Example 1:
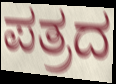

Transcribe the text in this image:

ಪತ್ರದ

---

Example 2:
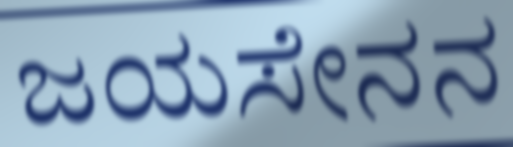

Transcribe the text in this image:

ಜಯಸೇನನ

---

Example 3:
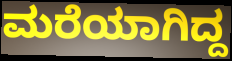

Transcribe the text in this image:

ಮರೆಯಾಗಿದ್ದ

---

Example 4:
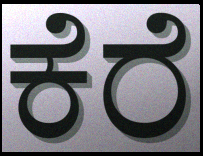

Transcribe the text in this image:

ಕೆರೆ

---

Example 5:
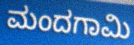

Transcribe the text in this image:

ಮಂದಗಾಮಿ